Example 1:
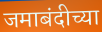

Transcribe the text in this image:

जमाबंदीच्या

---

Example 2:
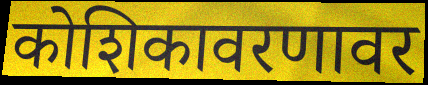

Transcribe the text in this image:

कोशिकावरणावर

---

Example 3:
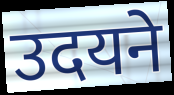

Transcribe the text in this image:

उदयने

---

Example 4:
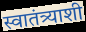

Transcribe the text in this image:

स्वातंत्र्याशी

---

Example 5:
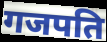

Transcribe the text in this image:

गजपति